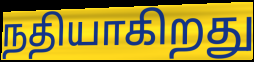
நதியாகிறது